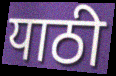
याठी